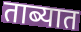
ताब्यात